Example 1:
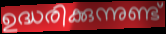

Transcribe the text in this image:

ഉദ്ധരിക്കുന്നുണ്ട്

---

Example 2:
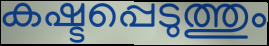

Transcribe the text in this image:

കഷ്ടപ്പെടുത്തും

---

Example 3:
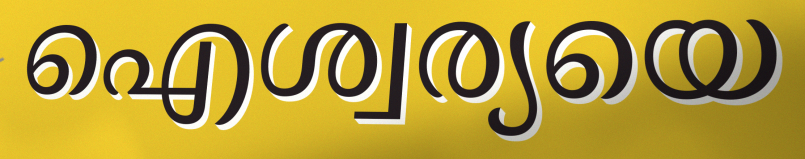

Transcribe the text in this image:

ഐശ്വര്യയെ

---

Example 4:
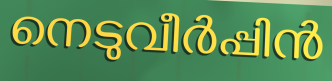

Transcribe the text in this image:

നെടുവീർപ്പിൻ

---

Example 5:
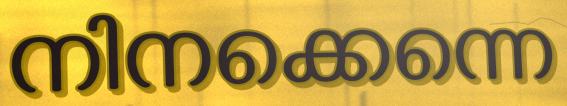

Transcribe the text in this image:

നിനക്കെന്നെ